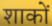
शाकों